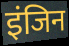
इंजिन